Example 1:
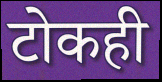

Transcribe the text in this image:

टोकही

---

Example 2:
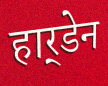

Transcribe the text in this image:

हार्डेन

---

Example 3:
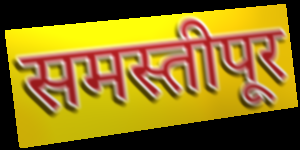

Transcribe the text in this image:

समस्तीपूर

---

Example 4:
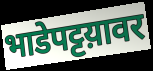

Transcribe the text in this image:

भाडेपट्टय़ावर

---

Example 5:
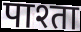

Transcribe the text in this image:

पाश्ता